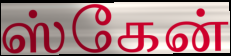
ஸ்கேன்